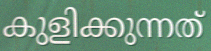
കുളിക്കുന്നത്